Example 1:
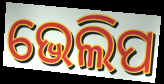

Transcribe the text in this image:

ଭେଲିପ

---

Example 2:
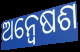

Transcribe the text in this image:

ଅନ୍ୱେଷଶ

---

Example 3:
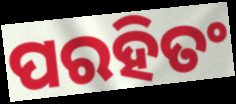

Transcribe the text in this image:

ପରହିତଂ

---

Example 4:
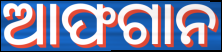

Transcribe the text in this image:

ଆଫଗାନ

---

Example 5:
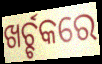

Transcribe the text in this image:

ଖର୍ଚ୍ଚକରେ